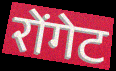
रोंगेट